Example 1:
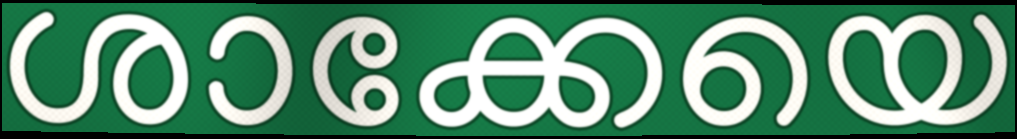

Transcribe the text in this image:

ശാക്കേയെ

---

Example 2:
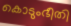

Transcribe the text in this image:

കൊടുംഭീതി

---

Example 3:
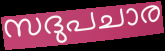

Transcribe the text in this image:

സദുപചാര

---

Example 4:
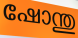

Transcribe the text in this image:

ഷോന്തു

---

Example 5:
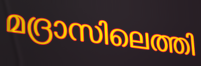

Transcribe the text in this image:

മദ്രാസിലെത്തി